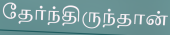
தேர்ந்திருந்தான்